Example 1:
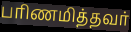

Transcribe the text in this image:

பரிணமித்தவர்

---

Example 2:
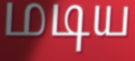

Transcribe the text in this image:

மடிய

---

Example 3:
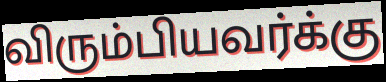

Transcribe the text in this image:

விரும்பியவர்க்கு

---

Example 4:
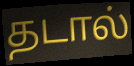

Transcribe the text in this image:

தடால்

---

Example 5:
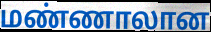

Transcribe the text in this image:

மண்ணாலான